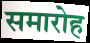
समारोह